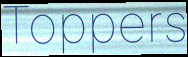
Toppers